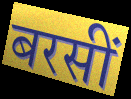
बरसीं